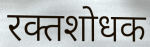
रक्तशोधक